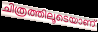
ചിത്രത്തിലൂടെയാണ്